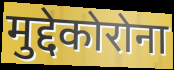
मुद्देकोरोना